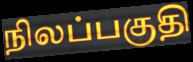
நிலப்பகுதி